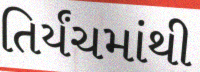
તિર્યંચમાંથી